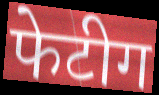
फेटीग